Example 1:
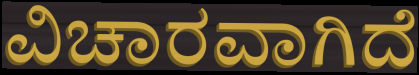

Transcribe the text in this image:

ವಿಚಾರವಾಗಿದೆ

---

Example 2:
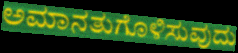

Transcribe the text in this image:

ಅಮಾನತುಗೊಳಿಸುವುದು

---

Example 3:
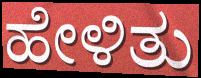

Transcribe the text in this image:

ಹೇಳಿತು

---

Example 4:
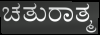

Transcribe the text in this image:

ಚತುರಾತ್ಮ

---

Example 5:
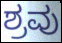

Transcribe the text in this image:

ಶ್ರವು